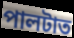
পালটাত